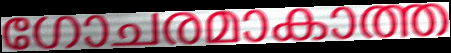
ഗോചരമാകാത്ത